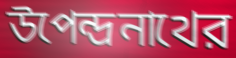
উপেন্দ্রনাথের